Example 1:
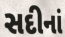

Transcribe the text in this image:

સદીનાં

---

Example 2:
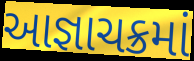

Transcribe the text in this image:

આજ્ઞાચક્રમાં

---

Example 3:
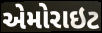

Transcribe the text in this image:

એમોરાઇટ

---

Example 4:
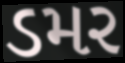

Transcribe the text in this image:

ડમર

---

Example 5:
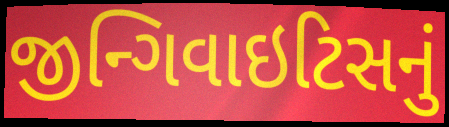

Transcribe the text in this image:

જીન્ગિવાઇટિસનું